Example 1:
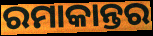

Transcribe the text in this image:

ରମାକାନ୍ତର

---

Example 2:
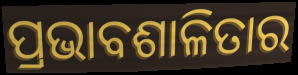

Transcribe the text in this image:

ପ୍ରଭାବଶାଳିତାର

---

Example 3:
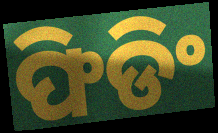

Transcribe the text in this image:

ଫିଡିଂ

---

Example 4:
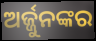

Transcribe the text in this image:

ଅର୍ଜ୍ଜୁନଙ୍କର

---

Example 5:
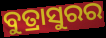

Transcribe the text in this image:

ବୁତ୍ରାସୁରର